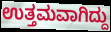
ಉತ್ತಮವಾಗಿದ್ದು